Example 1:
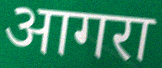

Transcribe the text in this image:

आगरा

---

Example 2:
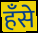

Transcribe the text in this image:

हँसे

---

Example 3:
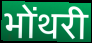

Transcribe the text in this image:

भोंथरी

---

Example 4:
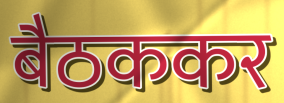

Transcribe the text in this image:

बैठककर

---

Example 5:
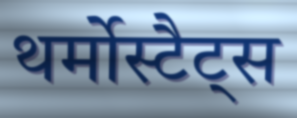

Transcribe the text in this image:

थर्मोस्टैट्स